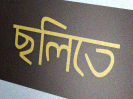
ছলিতে